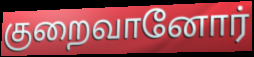
குறைவானோர்